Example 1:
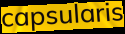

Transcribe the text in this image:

capsularis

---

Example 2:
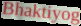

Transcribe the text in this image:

Bhaktiyog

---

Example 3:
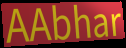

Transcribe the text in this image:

AAbhar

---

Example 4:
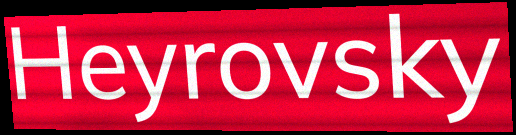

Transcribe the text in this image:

Heyrovsky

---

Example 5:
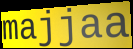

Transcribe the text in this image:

majjaa